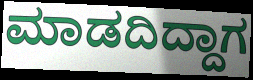
ಮಾಡದಿದ್ದಾಗ